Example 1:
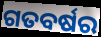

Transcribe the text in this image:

ଗତବର୍ଷର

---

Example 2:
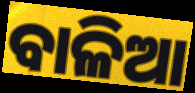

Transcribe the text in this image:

ବାଳିଆ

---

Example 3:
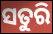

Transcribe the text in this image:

ସତୁରି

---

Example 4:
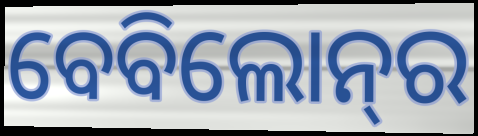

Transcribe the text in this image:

ବେବିଲୋନ୍‌ର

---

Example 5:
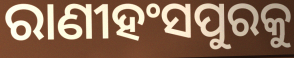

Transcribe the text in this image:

ରାଣୀହଂସପୁରକୁ